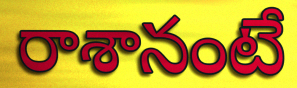
రాశానంటే